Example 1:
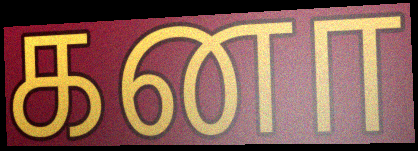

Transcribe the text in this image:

கனா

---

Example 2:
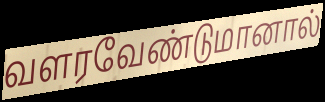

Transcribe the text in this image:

வளரவேண்டுமானால்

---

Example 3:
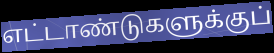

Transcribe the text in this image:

எட்டாண்டுகளுக்குப்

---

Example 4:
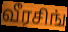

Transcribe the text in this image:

வீரசிங்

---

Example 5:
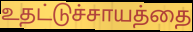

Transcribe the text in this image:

உதட்டுச்சாயத்தை